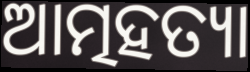
ଆତ୍ମହତ୍ୟା